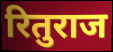
रितुराज